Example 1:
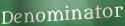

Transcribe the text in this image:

Denominator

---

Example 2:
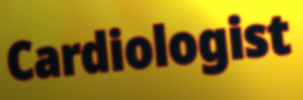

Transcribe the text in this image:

Cardiologist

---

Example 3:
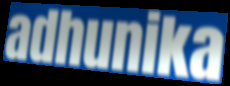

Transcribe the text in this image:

adhunika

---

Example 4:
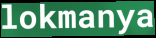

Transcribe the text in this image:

lokmanya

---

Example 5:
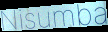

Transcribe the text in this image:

Nisumba